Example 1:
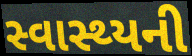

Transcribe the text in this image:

સ્વાસ્થ્યની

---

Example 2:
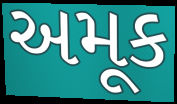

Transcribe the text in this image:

અમૂક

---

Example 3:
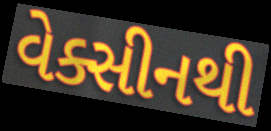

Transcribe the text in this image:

વેક્સીનથી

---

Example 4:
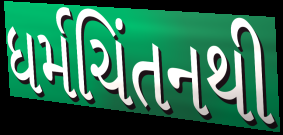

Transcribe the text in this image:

ધર્મચિંતનથી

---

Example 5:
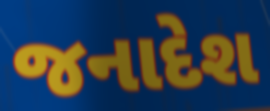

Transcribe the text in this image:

જનાદેશ